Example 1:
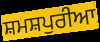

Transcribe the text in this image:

ਸ਼ਮਸ਼ਪੁਰੀਆ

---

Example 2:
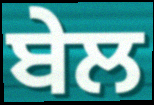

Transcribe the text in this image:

ਬੇਲ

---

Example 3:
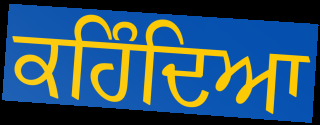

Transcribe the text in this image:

ਕਹਿੰਦਿਆ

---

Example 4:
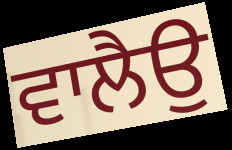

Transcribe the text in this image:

ਵਾਲੈਉ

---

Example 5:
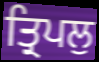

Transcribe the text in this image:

ਤ੍ਰਿਪਲੁ